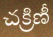
చక్రిణీ